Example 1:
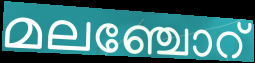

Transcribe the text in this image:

മലഞ്ചോറ്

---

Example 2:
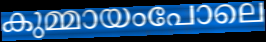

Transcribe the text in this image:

കുമ്മായംപോലെ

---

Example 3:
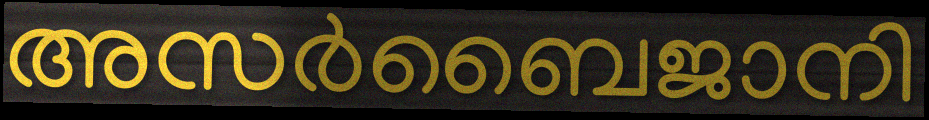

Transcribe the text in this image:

അസർബൈജാനി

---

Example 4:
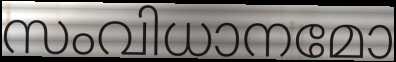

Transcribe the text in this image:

സംവിധാനമോ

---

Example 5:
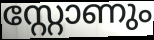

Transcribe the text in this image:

സ്റ്റോണും